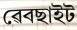
ৱেবছাইট